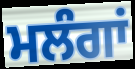
ਮਲੰਗਾਂ